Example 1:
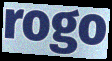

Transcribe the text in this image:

rogo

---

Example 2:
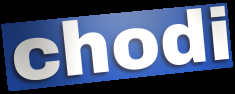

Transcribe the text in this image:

chodi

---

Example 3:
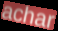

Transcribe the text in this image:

achar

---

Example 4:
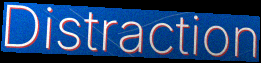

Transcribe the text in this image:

Distraction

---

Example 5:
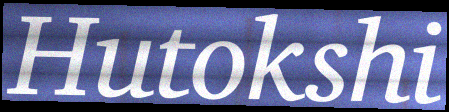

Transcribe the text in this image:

Hutokshi